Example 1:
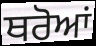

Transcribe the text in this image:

ਥਰੋਆਂ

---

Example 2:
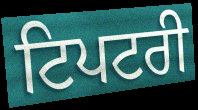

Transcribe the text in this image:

ਟਿਪਟਰੀ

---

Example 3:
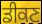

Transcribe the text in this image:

ਡੀਕਣ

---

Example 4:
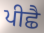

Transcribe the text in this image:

ਪੀਛੈ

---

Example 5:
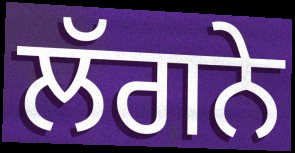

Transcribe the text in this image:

ਲੱਗਨੇ